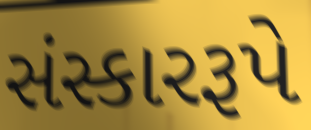
સંસ્કારરૂપે